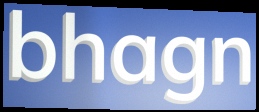
bhagn